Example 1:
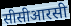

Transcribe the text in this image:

सीसीआरसी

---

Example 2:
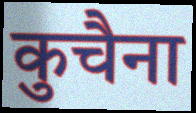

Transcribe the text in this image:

कुचैना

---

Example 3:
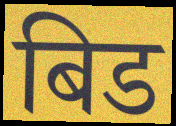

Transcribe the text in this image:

बिड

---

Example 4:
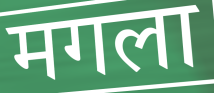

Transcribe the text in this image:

मगला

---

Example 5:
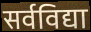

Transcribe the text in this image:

सर्वविद्या